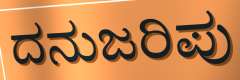
ದನುಜರಿಪು